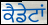
ਕੈਡੇਟਾਂ